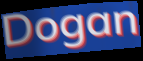
Dogan